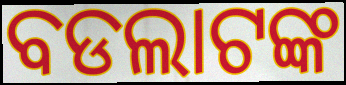
ବଡଲାଟଙ୍କ